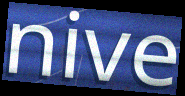
nive